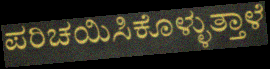
ಪರಿಚಯಿಸಿಕೊಳ್ಳುತ್ತಾಳೆ